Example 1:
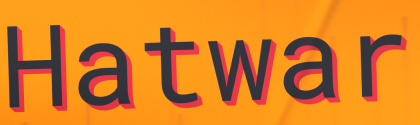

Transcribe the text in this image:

Hatwar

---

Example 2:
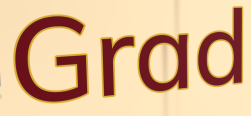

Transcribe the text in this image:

Grad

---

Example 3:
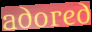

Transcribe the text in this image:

adored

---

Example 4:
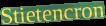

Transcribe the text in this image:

Stietencron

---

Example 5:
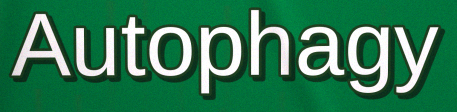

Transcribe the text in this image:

Autophagy